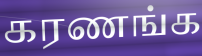
கரணங்க